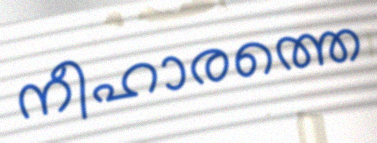
നീഹാരത്തെ